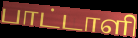
பாட்டாளி